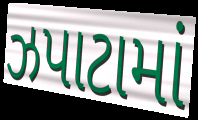
ઝપાટામાં